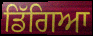
ਡਿੱਗਿਆ